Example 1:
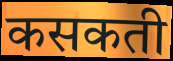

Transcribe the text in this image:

कसकती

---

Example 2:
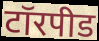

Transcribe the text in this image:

टॉरपीड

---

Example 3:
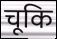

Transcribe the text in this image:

चूकि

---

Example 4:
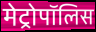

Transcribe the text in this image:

मेट्रोपॉलिस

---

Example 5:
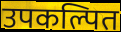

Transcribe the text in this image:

उपकल्पित